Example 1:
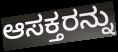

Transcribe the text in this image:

ಆಸಕ್ತರನ್ನು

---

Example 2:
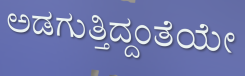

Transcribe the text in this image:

ಅಡಗುತ್ತಿದ್ದಂತೆಯೇ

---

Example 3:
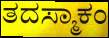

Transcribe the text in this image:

ತದಸ್ಮಾಕಂ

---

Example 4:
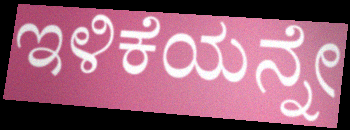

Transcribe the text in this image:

ಇಳಿಕೆಯನ್ನೇ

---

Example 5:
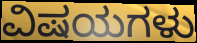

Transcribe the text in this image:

ವಿಷಯಗಳು